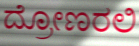
ದ್ರೋಣರಲಿ